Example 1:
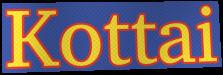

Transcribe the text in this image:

Kottai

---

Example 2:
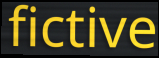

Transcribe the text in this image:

fictive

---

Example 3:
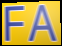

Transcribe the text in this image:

FA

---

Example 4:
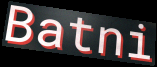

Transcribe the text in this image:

Batni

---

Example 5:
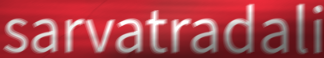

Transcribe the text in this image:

sarvatradali